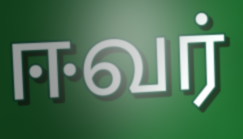
ஈவர்